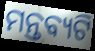
ମନ୍ତବ୍ୟଟି